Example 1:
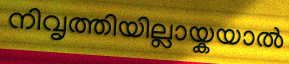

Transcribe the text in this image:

നിവൃത്തിയില്ലായ്കയാൽ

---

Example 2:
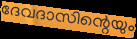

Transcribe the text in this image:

ദേവദാസിന്റെയും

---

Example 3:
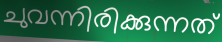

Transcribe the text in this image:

ചുവന്നിരിക്കുന്നത്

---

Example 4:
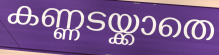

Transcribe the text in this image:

കണ്ണടയ്ക്കാതെ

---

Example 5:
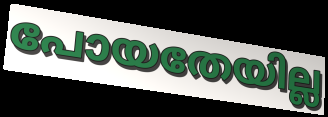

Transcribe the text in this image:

പോയതേയില്ല